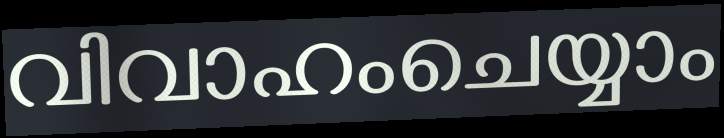
വിവാഹംചെയ്യാം